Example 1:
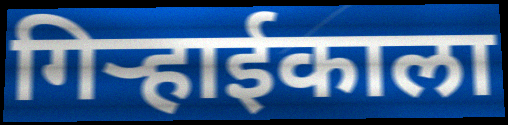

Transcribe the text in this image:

गिर्‍हाईकाला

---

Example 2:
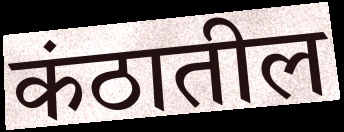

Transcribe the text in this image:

कंठातील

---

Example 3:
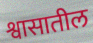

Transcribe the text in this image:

श्वासातील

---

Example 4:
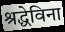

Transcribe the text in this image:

श्रद्धेविना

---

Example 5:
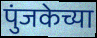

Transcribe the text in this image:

पुंजकेच्या